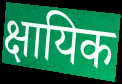
क्षायिक